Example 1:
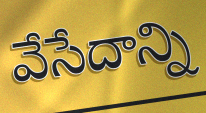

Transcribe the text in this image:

వేసేదాన్ని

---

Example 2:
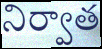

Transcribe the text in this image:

నిర్వాత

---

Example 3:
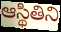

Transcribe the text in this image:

ఆస్థితిని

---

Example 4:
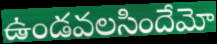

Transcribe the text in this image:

ఉండవలసిందేమో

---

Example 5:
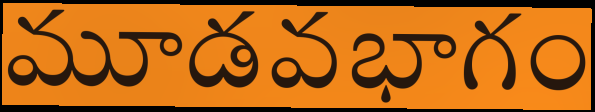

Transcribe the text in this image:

మూడవభాగం